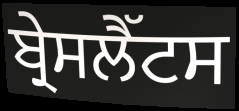
ਬ੍ਰੇਸਲੈੱਟਸ